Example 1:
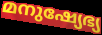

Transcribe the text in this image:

മനുഷ്യേഭ്യ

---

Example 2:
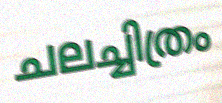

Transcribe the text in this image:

ചലച്ചിത്രം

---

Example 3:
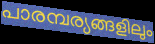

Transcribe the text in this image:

പാരമ്പര്യങ്ങളിലും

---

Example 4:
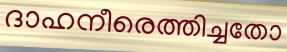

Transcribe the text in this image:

ദാഹനീരെത്തിച്ചതോ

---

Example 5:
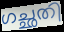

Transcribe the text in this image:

ഗച്ഛതി